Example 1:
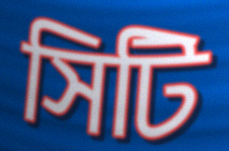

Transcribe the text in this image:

সিটি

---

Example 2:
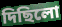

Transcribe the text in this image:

দিছিলো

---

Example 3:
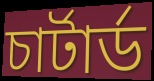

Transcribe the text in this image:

চার্টার্ড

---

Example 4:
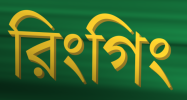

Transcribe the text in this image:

রিংগিং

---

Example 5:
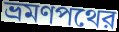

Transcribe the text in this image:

ভ্রমণপথের